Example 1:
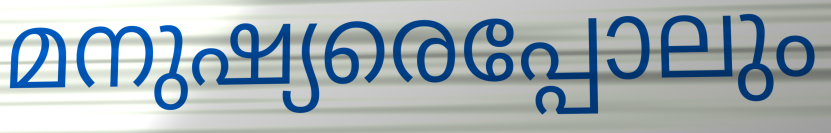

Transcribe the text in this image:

മനുഷ്യരെപ്പോലും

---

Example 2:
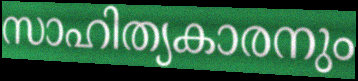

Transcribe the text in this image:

സാഹിത്യകാരനും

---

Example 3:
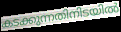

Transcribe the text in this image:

കടക്കുന്നതിനിടയിൽ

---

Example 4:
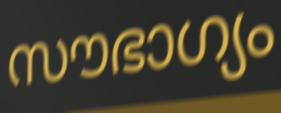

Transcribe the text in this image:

സൗഭാഗ്യം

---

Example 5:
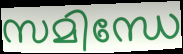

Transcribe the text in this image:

സമിന്ധേ